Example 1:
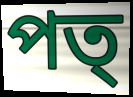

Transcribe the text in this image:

পত্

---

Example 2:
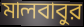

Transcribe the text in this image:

মালবাবুর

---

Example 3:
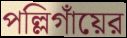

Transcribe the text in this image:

পল্লিগাঁয়ের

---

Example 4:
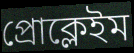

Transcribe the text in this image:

প্রোক্লেইম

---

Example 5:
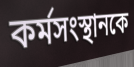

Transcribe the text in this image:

কর্মসংস্থানকে